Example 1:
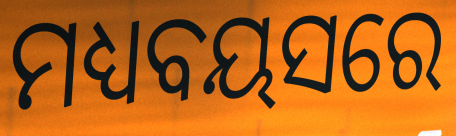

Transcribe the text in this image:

ମଧ୍ୟବୟସରେ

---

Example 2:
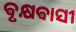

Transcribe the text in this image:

ଵୃକ୍ଷଵାସୀ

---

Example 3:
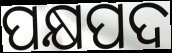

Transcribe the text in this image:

ପକ୍ଷପଦ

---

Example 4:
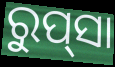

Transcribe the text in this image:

ରୁପ୍‍ସା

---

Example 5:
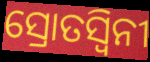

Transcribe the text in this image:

ସ୍ରୋତସ୍ୱିନୀ